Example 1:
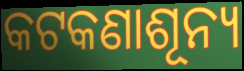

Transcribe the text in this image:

କଟକଣାଶୂନ୍ୟ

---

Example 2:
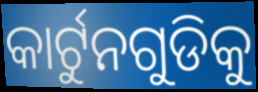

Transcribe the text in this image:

କାର୍ଟୁନଗୁଡିକୁ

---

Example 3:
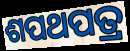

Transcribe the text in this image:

ଶପଥପତ୍ର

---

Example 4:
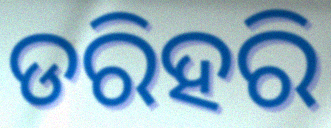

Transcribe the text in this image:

ଡରିହରି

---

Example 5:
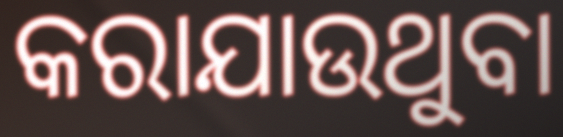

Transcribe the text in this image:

କରାଯାଉଥୁବା